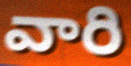
వారి